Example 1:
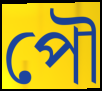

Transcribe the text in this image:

পৌ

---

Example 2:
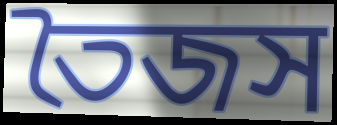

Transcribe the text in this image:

তৈজস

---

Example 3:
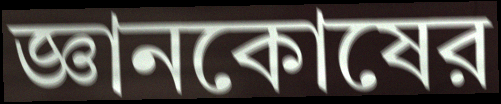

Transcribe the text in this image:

জ্ঞানকোষের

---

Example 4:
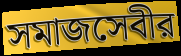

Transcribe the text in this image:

সমাজসেবীর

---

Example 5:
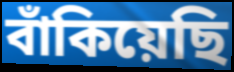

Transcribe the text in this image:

বাঁকিয়েছি